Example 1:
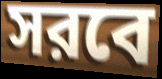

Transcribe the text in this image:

সরবে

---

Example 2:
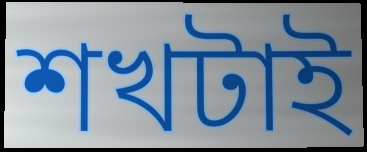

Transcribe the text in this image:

শখটাই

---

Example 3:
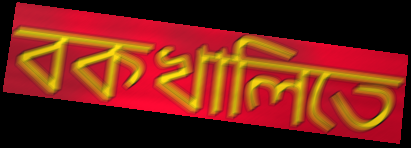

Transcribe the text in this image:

বকখালিতে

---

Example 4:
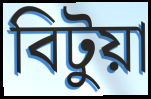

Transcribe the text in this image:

বিটুয়া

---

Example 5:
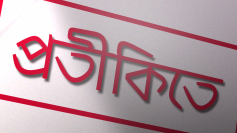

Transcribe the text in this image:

প্রতীকিতে